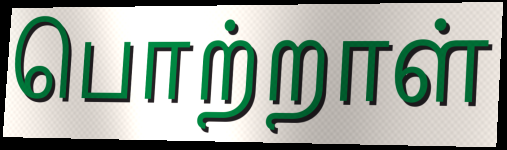
பொற்றாள்